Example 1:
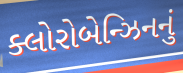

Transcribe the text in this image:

ક્લોરોબેન્ઝિનનું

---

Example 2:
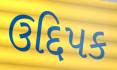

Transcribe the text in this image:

ઉદ્દિપક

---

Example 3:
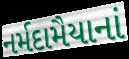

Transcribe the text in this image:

નર્મદામૈયાનાં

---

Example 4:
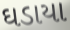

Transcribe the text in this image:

ઘડાયા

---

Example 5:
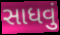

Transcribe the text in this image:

સાધવું